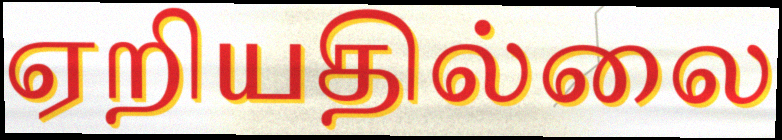
ஏறியதில்லை